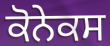
ਕੋਨੇਕਸ